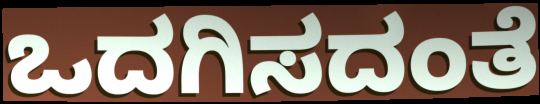
ಒದಗಿಸದಂತೆ